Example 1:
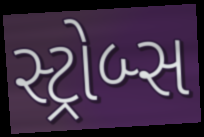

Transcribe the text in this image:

સ્ટ્રોબ્સ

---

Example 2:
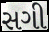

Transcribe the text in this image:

સગી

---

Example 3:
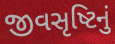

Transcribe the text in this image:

જીવસૃષ્ટિનું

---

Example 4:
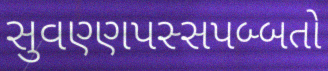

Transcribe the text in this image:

સુવણ્ણપસ્સપબ્બતો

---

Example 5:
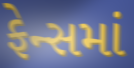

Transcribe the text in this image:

ફેન્સમાં